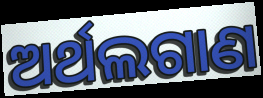
ଅର୍ଥଲଗାଣ